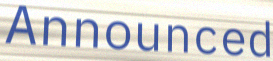
Announced